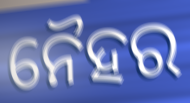
ନୈହର